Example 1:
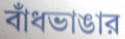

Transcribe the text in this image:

বাঁধভাঙার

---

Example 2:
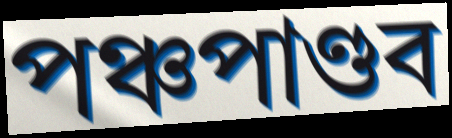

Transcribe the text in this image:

পঞ্চপাণ্ডব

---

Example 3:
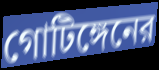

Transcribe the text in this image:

গোটিঙ্গেনের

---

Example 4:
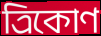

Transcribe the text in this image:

ত্রিকোণ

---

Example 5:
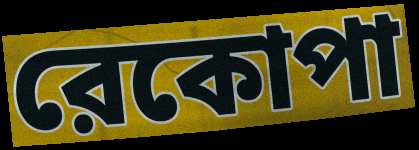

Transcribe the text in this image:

রেকোপা